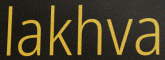
lakhva